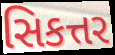
સિકત્તર